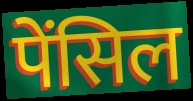
पेंसिल